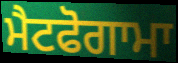
ਮੈਟਫੋਗਾਮਾ